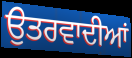
ਉਤਰਵਾਦੀਆਂ